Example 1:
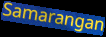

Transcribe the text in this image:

Samarangan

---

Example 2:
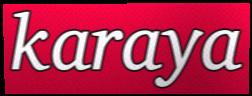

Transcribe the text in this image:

karaya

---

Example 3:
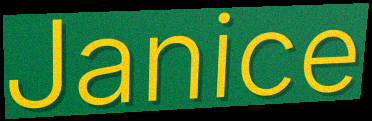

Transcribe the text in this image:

Janice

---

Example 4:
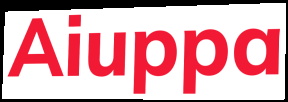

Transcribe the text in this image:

Aiuppa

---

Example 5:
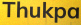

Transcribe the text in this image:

Thukpa